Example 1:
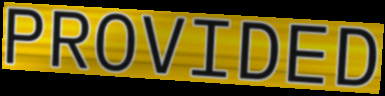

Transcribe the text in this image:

PROVIDED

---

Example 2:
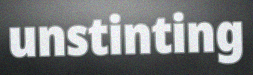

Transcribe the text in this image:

unstinting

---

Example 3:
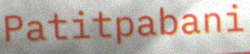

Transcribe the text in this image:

Patitpabani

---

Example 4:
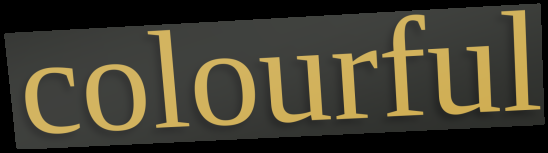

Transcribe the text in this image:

colourful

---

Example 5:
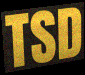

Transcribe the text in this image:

TSD